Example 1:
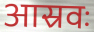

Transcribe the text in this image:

आस्रवः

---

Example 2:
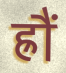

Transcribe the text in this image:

ह्रौं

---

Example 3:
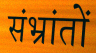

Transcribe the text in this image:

संभ्रांतों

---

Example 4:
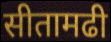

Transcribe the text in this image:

सीतामढी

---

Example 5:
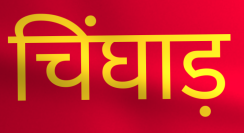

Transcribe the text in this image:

चिंघाड़